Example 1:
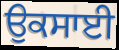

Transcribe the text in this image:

ਉਕਸਾਈ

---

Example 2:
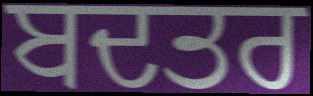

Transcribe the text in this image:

ਬਦਤਰ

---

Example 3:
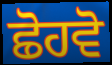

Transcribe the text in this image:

ਛੋਹਵੋ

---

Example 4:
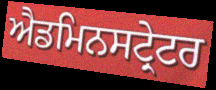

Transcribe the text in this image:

ਐਡਮਿਨਸਟ੍ਰੇਟਰ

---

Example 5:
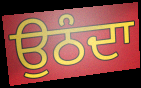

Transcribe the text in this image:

ਉਠੰਦਾ